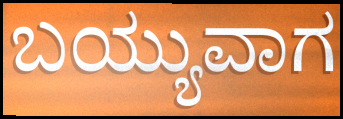
ಬಯ್ಯುವಾಗ